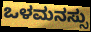
ಒಳಮನಸ್ಸು